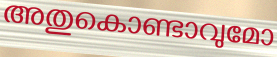
അതുകൊണ്ടാവുമോ